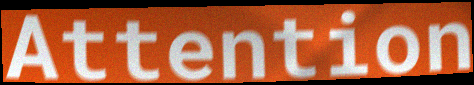
Attention